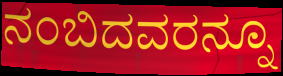
ನಂಬಿದವರನ್ನೂ